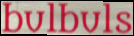
bulbuls